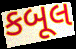
કબૂલ